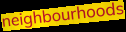
neighbourhoods